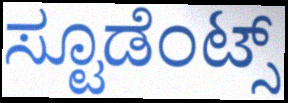
ಸ್ಟೂಡೆಂಟ್ಸ್